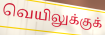
வெயிலுக்குக்